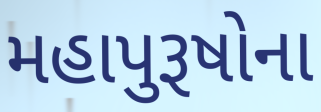
મહાપુરૂષોના